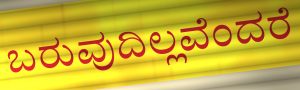
ಬರುವುದಿಲ್ಲವೆಂದರೆ